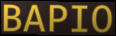
BAPIO